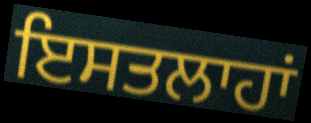
ਇਸਤਲਾਹਾਂ